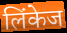
लिंकेज